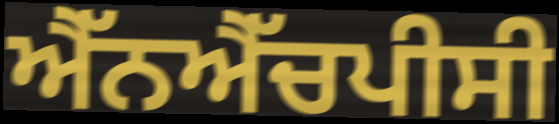
ਐੱਨਐੱਚਪੀਸੀ